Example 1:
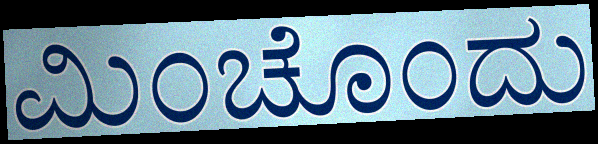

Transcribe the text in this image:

ಮಿಂಚೊಂದು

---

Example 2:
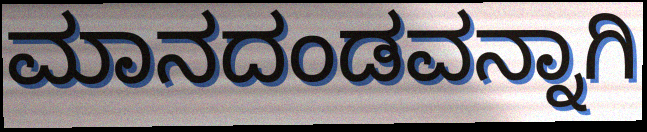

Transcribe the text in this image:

ಮಾನದಂಡವನ್ನಾಗಿ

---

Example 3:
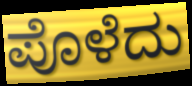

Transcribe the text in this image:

ಪೊಳೆದು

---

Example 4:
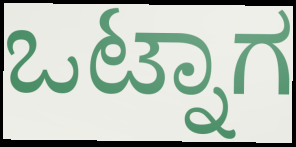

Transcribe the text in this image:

ಒಟ್ನಾಗ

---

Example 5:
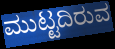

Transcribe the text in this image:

ಮುಟ್ಟದಿರುವ